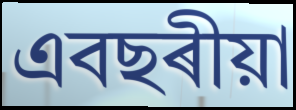
এবছৰীয়া